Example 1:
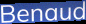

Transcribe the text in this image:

Benaud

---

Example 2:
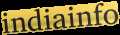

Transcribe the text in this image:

indiainfo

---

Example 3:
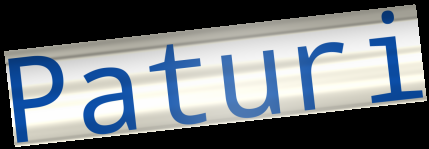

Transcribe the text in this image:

Paturi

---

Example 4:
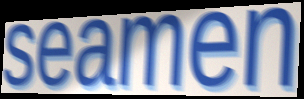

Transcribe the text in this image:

seamen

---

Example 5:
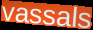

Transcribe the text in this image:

vassals